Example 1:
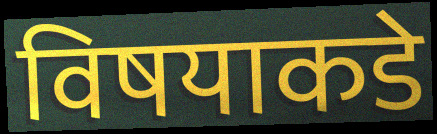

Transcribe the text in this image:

विषयाकडे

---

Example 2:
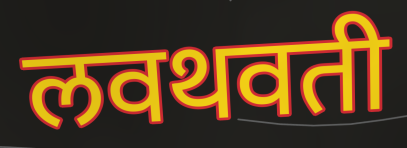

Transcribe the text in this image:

लवथवती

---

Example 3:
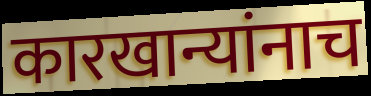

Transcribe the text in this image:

कारखान्यांनाच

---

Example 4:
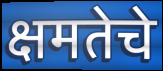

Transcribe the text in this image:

क्षमतेचे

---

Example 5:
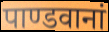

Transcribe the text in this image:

पाण्डवानां